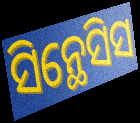
ସିନ୍ଥେସିସ